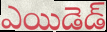
ఎయిడెడ్